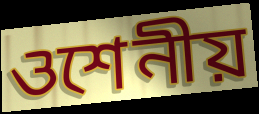
ওশেনীয়